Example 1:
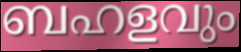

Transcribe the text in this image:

ബഹളവും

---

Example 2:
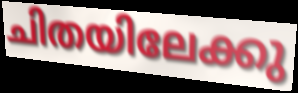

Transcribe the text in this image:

ചിതയിലേക്കു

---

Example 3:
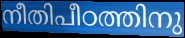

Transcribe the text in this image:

നീതിപീഠത്തിനു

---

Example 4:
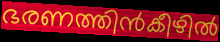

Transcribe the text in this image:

ഭരണത്തിൻകീഴിൽ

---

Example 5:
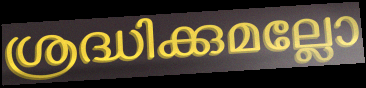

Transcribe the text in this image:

ശ്രദ്ധിക്കുമല്ലോ